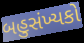
બહુસંખ્યકો